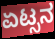
ಏಟ್ಸನ